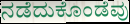
ನಡೆದುಕೊಂಡೆವು